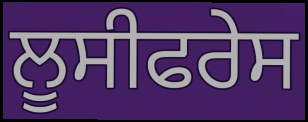
ਲੂਸੀਫਰੇਸ